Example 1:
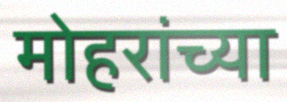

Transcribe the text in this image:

मोहरांच्या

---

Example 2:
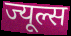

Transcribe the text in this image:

ज्यूल्स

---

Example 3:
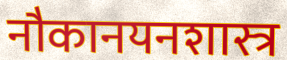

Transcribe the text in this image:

नौकानयनशास्त्र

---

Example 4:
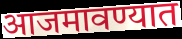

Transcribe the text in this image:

आजमावण्यात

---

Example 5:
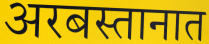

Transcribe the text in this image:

अरबस्तानात